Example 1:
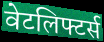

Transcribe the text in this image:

वेटलिफ्टर्स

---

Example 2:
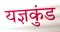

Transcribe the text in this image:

यज्ञकुंड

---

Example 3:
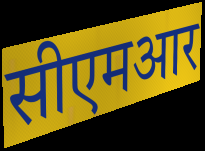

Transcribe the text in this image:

सीएमआर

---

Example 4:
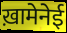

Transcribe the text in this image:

ख़ामेनेई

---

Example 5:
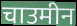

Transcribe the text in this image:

चाउमीन